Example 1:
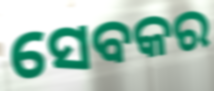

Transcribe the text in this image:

ସେବକର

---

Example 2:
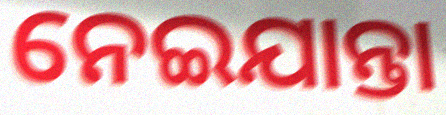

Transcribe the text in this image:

ନେଇଯାନ୍ତା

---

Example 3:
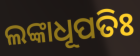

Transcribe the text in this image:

ଲଙ୍କାଧୂପତିଃ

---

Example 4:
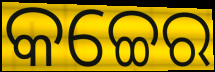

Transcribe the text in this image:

କଚ୍ଚେର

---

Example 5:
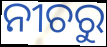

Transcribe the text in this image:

ନୀଚରୁ